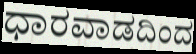
ಧಾರವಾಡದಿಂದ